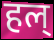
हल्